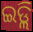
ଇଡ୍ଲି